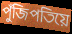
পুঁজিপতিয়ে